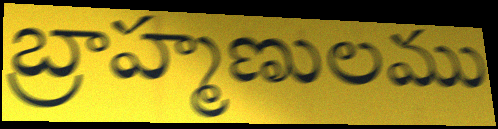
బ్రాహ్మణులము